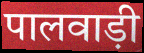
पालवाड़ी